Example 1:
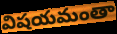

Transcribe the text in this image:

విషయమంతా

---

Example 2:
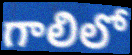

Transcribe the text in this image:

గాలిలో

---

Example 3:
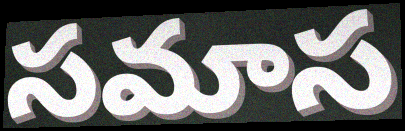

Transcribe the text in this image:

సమాస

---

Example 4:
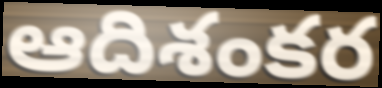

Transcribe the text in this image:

ఆదిశంకర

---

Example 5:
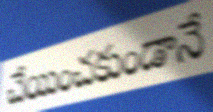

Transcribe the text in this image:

చేయించకుండానే